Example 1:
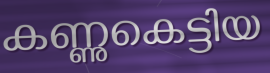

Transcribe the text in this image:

കണ്ണുകെട്ടിയ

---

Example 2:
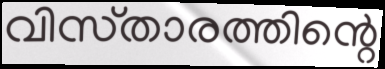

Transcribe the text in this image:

വിസ്‌താരത്തിന്റെ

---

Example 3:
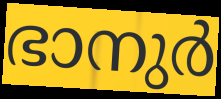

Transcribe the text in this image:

ഭാനുർ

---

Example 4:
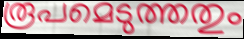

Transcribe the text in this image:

രൂപമെടുത്തതും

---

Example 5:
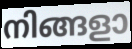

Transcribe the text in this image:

നിങ്ങളാ